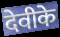
देवीके